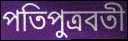
পতিপুত্রবতী